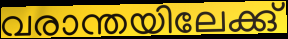
വരാന്തയിലേക്കു്